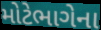
મોટેભાગેના